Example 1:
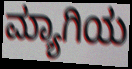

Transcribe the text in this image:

ಮ್ಯಾಗಿಯ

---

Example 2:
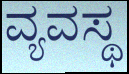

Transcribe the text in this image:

ವ್ಯವಸ್ಥ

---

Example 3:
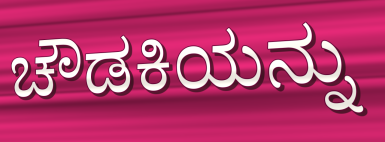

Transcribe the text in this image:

ಚೌಡಕಿಯನ್ನು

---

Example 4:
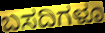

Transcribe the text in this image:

ಬಸದಿಗಳೂ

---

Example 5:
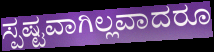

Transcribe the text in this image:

ಸ್ಪಷ್ಟವಾಗಿಲ್ಲವಾದರೂ